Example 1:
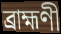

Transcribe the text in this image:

ব্রাহ্মণী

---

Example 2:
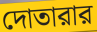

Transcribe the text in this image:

দোতারার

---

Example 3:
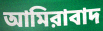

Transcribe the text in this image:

আমিরাবাদ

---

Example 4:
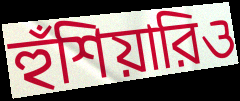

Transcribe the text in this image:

হুঁশিয়ারিও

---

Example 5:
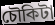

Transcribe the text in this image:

চৌকিটা